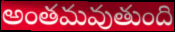
అంతమవుతుంది